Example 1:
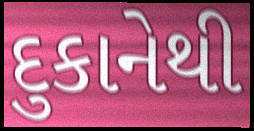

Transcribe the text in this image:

દુકાનેથી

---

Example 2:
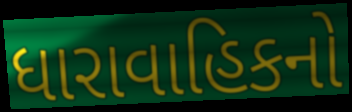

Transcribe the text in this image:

ધારાવાહિકનો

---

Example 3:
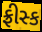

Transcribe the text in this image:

ફ્રીસ્ક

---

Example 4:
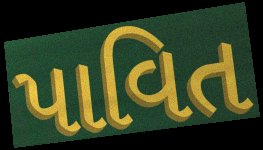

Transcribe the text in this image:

પાવિત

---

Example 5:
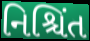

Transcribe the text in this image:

નિશ્ચિંત